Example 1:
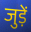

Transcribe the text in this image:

जुड़ें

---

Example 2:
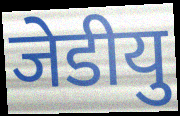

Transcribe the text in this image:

जेडीयु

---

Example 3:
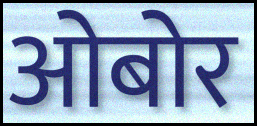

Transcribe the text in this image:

ओबोर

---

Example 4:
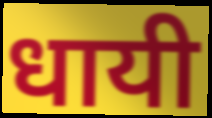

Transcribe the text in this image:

धायी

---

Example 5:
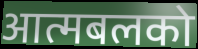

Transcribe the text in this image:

आत्मबलको